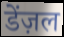
डेंज़ल